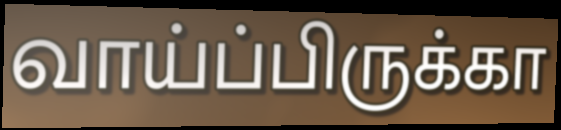
வாய்ப்பிருக்கா